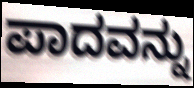
ಪಾದವನ್ನು